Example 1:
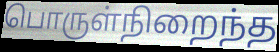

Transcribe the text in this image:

பொருள்நிறைந்த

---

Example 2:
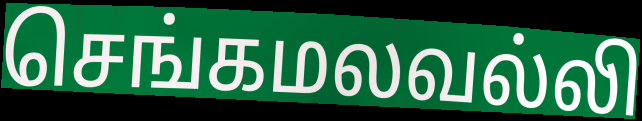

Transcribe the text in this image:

செங்கமலவல்லி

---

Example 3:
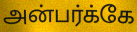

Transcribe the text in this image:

அன்பர்க்கே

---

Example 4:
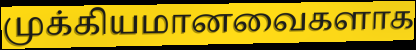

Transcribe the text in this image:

முக்கியமானவைகளாக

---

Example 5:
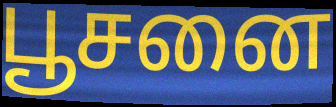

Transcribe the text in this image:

பூசனை